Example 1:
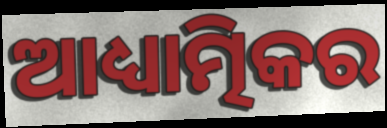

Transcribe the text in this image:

ଆଧ୍ୟାତ୍ମିକର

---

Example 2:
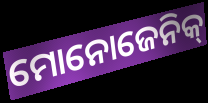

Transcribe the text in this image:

ମୋନୋଜେନିକ୍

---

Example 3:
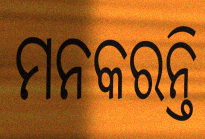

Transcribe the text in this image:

ମନକରନ୍ତି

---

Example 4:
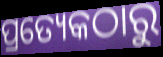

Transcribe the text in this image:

ପ୍ରତ୍ୟେକଠାରୁ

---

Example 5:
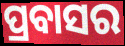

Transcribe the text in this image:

ପ୍ରବାସର